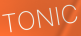
TONIC